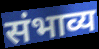
संभाव्य